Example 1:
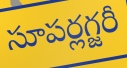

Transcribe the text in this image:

సూపర్లగ్జరీ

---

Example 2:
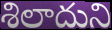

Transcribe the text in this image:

శిలాదుని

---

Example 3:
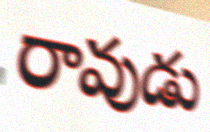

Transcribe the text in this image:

రావుడు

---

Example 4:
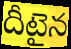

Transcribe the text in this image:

దీటైన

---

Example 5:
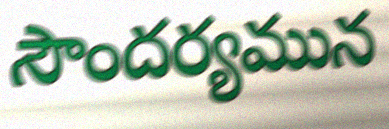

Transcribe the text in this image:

సౌందర్యమున